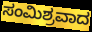
ಸಂಮಿಶ್ರವಾದ